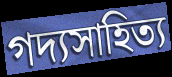
গদ্যসাহিত্য